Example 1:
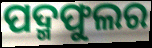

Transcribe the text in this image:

ପଦ୍ମଫୁଲର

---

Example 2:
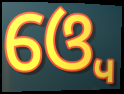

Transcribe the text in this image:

ଓ୍ବେ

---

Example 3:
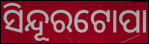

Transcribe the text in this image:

ସିନ୍ଦୂରଟୋପା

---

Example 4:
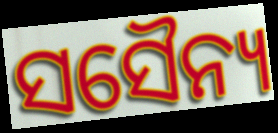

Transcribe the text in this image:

ସସୈନ୍ୟ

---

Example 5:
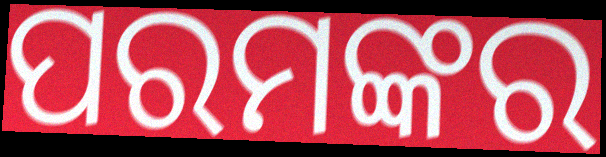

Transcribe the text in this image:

ପରମଙ୍କର